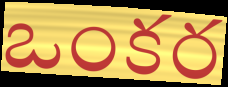
ఒంకర